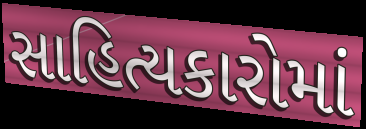
સાહિત્યકારોમાં